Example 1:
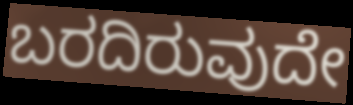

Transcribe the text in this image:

ಬರದಿರುವುದೇ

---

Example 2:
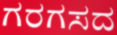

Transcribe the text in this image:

ಗರಗಸದ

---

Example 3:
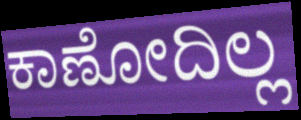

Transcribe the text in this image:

ಕಾಣೋದಿಲ್ಲ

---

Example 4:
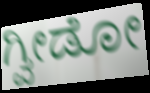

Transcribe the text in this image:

ಗ್ವೀಡೋ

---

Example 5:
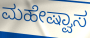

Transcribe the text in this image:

ಮಹೇಷ್ವಾಸ